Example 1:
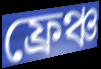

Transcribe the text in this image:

ফ্ৰেঞ্চ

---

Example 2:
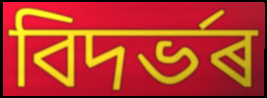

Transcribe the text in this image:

বিদৰ্ভৰ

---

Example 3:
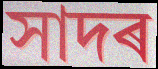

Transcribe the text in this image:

সাদৰ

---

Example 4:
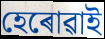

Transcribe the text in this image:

হেৰোৱাই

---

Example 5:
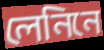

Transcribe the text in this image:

লেনিনে